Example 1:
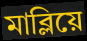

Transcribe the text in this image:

মাব্লিয়ে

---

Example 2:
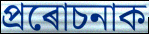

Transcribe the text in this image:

প্ৰৰোচনাক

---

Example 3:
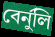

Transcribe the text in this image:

বেৰ্নুলি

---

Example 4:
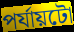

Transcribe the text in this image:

পৰ্যায়টো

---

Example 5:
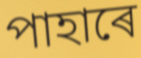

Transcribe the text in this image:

পাহাৰে